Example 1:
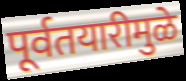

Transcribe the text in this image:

पूर्वतयारीमुळे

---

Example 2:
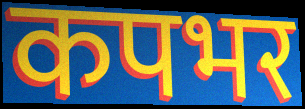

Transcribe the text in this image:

कपभर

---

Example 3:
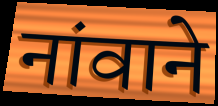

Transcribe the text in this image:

नांवाने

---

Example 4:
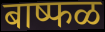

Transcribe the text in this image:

बाष्फळ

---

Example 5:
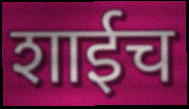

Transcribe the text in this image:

शाईच